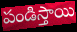
పండిస్తాయి